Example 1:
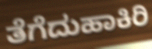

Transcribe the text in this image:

ತೆಗೆದುಹಾಕಿರಿ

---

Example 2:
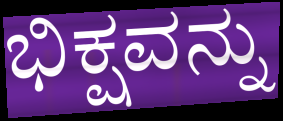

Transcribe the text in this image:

ಭಿಕ್ಷವನ್ನು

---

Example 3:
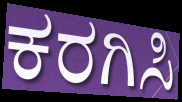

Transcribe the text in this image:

ಕರಗಿಸಿ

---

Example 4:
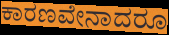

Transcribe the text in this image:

ಕಾರಣವೇನಾದರೂ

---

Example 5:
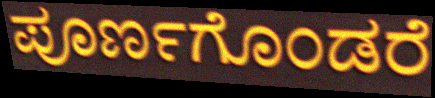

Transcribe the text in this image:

ಪೂರ್ಣಗೊಂಡರೆ